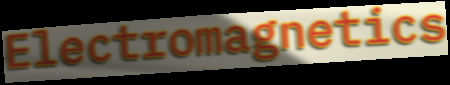
Electromagnetics